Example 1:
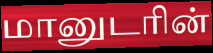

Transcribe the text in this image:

மானுடரின்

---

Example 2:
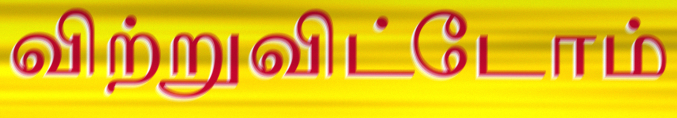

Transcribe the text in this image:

விற்றுவிட்டோம்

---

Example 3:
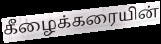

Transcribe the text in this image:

கீழைக்கரையின்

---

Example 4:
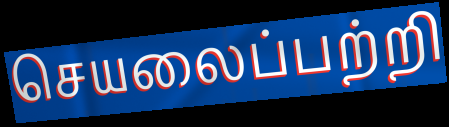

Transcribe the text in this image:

செயலைப்பற்றி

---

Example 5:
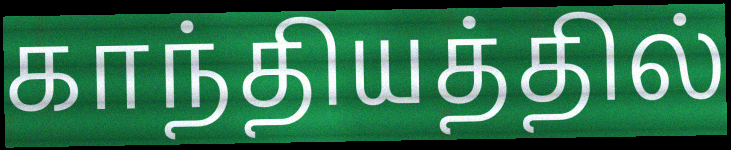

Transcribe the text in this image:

காந்தியத்தில்